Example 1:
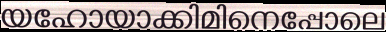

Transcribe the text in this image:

യഹോയാക്കിമിനെപ്പോലെ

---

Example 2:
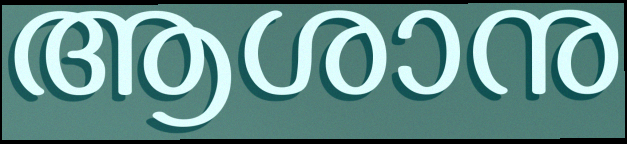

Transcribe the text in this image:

ആശാനു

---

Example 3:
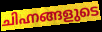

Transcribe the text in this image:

ചിഹ്നങ്ങളുടെ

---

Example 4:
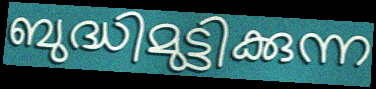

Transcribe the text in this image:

ബുദ്ധിമുട്ടിക്കുന്ന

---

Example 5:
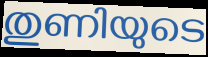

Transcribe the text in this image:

തുണിയുടെ